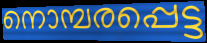
നൊമ്പരപ്പെട്ട